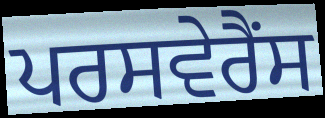
ਪਰਸਵੇਰੈਂਸ